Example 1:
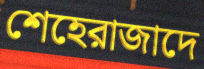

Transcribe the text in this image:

শেহেরাজাদে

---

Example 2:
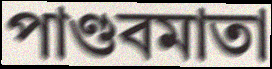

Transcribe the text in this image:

পাণ্ডবমাতা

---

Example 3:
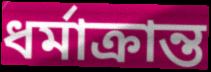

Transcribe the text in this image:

ধর্মাক্রান্ত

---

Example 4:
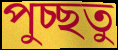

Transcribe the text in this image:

পুচ্ছতু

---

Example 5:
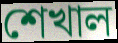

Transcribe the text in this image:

শেখাল